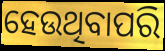
ହେଉଥିବାପରି